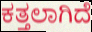
ಕತ್ತಲಾಗಿದೆ